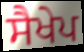
ਸੈਖੇਪ